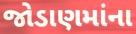
જોડાણમાંના